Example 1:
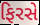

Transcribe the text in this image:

ફિરસે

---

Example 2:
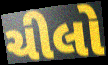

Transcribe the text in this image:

ચીલો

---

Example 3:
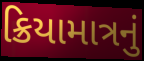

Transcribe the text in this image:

ક્રિયામાત્રનું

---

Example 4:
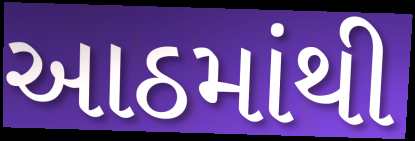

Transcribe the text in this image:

આઠમાંથી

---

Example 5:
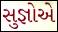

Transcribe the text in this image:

સુજ્ઞોએ